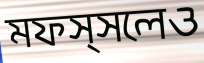
মফস্‌সলেও